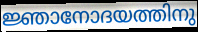
ജ്ഞാനോദയത്തിനു